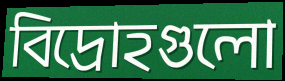
বিদ্রোহগুলো